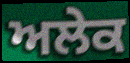
ਅਲੇਕ